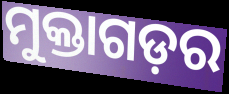
ମୁକ୍ତାଗଡ଼ର